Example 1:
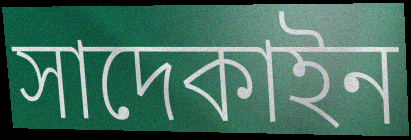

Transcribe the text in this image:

সাদেকাইন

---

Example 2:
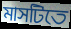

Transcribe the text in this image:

মাসটিতে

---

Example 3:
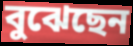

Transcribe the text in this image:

বুঝেছেন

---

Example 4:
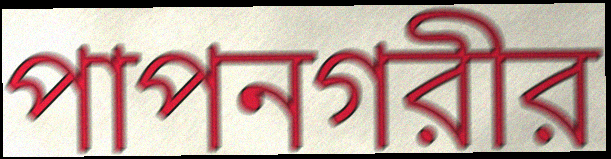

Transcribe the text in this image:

পাপনগরীর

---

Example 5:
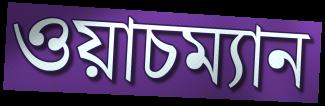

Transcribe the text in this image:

ওয়াচম্যান